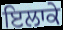
ਇਲਾਕੇ